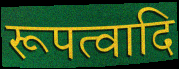
रूपत्वादि